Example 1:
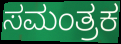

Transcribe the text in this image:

ಸಮಂತ್ರಕ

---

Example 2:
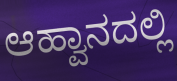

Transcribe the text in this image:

ಆಹ್ವಾನದಲ್ಲಿ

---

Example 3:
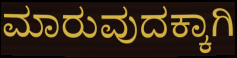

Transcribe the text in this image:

ಮಾರುವುದಕ್ಕಾಗಿ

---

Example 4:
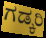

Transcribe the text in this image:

ಗಡ್ಕರಿ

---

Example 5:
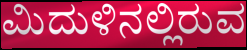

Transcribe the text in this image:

ಮಿದುಳಿನಲ್ಲಿರುವ